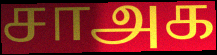
சாஅக